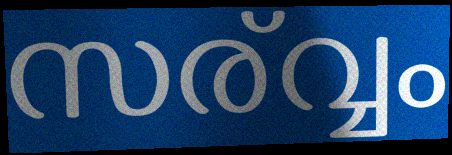
സര്വ്വം